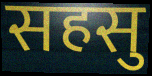
सहसु